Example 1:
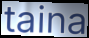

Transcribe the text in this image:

taina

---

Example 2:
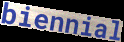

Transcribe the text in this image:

biennial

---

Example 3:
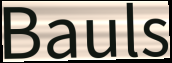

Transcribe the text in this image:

Bauls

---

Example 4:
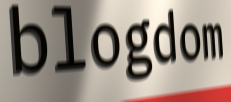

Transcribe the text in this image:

blogdom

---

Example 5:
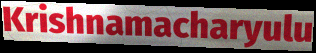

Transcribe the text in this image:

Krishnamacharyulu